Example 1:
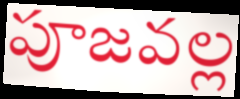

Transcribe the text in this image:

పూజవల్ల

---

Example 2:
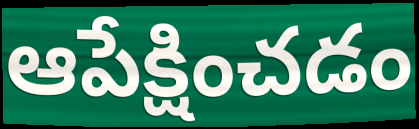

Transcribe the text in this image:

ఆపేక్షించడం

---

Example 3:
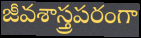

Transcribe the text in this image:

జీవశాస్త్రపరంగా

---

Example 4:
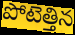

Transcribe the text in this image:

పోటెత్తిన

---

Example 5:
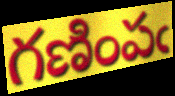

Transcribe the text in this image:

గణింపఁ